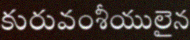
కురువంశీయులైన